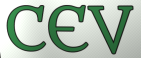
CEV